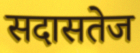
सदासतेज